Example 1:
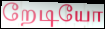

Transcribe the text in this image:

றேடியோ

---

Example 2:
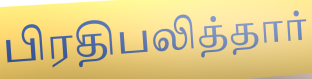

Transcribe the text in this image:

பிரதிபலித்தார்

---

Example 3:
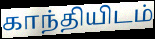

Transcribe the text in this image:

காந்தியிடம்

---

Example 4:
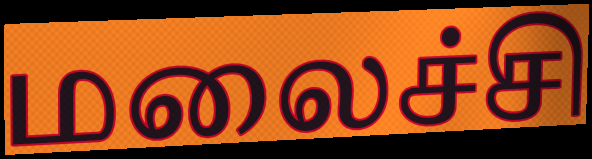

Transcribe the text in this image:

மலைச்சி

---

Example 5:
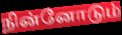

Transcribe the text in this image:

நின்னோடும்